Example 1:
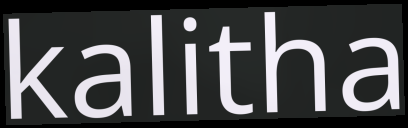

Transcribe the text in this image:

kalitha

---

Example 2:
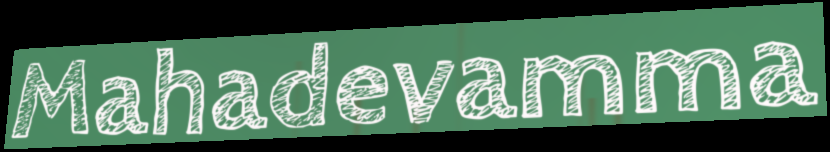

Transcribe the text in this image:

Mahadevamma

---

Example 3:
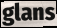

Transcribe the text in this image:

glans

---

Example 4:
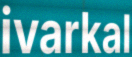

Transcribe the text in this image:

ivarkal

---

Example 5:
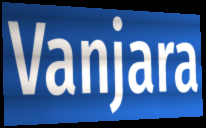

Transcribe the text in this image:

Vanjara